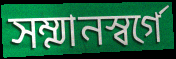
সম্মানস্বর্গে